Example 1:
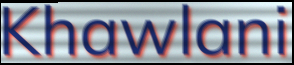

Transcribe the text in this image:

Khawlani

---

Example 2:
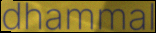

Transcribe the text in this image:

dhammal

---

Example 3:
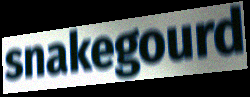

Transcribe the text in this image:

snakegourd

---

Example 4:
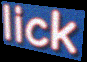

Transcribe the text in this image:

lick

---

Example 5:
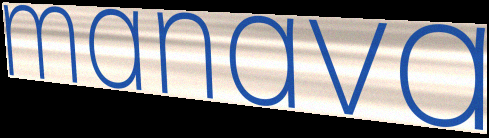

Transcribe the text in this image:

manava